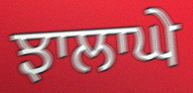
ਝਾਲਾਘੇ